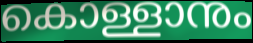
കൊള്ളാനും